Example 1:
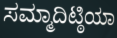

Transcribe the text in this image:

ಸಮ್ಮಾದಿಟ್ಠಿಯಾ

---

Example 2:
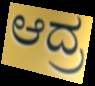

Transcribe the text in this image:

ಆದ್ರ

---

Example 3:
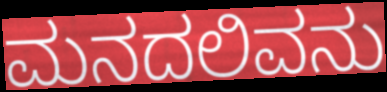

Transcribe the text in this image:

ಮನದಲಿವನು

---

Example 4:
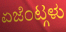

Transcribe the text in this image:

ಏಜೆಂಟ್ಗಳು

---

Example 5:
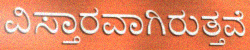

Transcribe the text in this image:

ವಿಸ್ತಾರವಾಗಿರುತ್ತವೆ